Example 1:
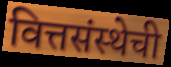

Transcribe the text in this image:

वित्तसंस्थेची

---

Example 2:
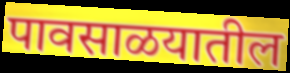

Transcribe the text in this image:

पावसाळयातील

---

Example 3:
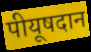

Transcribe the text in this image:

पीयूषदान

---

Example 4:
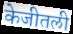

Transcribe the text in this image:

केजीतली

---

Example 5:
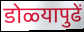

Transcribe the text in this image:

डोळ्यापुढें